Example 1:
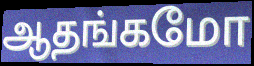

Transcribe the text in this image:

ஆதங்கமோ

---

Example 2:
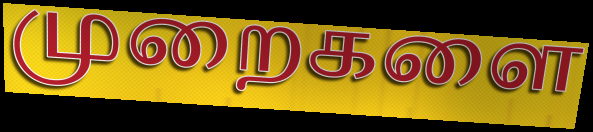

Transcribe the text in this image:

முறைகளை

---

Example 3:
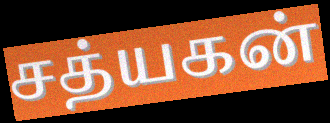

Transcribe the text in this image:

சத்யகன்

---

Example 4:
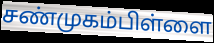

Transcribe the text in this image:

சண்முகம்பிள்ளை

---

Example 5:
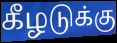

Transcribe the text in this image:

கீழடுக்கு